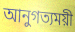
আনুগত্যময়ী